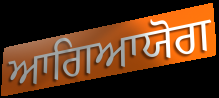
ਆਗਿਆਯੋਗ